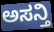
ಅಸನ್ತಿ